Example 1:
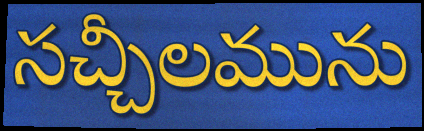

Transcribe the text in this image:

సచ్చీలమును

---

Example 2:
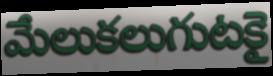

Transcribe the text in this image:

మేలుకలుగుటకై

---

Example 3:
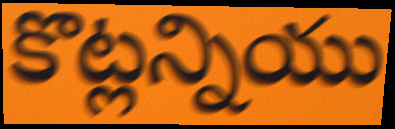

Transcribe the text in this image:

కొట్లన్నియు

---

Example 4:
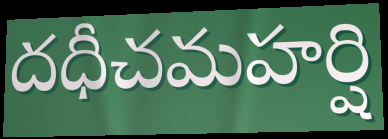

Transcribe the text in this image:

దధీచమహర్షి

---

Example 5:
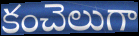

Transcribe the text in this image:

కంచెలుగా